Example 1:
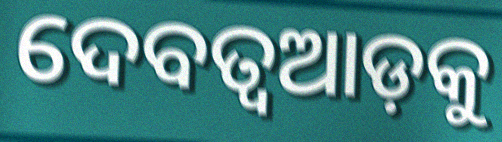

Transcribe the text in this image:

ଦେବତ୍ୱଆଡ଼କୁ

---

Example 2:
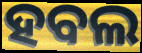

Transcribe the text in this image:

ହବଲ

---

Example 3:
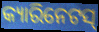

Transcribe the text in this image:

କ୍ୟାରିନେଟସ୍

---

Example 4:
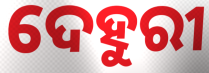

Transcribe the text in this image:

ଦେହୁରୀ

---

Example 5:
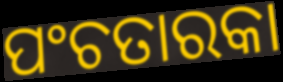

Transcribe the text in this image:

ପଂଚତାରକା